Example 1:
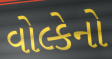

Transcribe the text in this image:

વોલ્કેનો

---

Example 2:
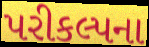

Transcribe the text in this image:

પરીકલ્પના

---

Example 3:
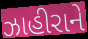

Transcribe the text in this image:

ઝાહીરાને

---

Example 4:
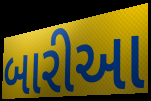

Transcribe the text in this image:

બારીઆ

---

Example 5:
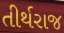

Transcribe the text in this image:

તીર્થરાજ